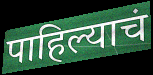
पाहिल्याचं